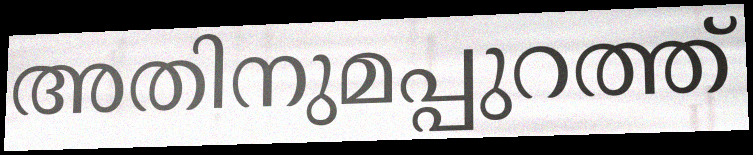
അതിനുമപ്പുറത്ത്